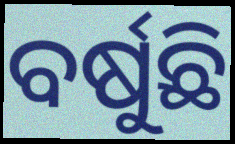
ବର୍ଷୁଛି